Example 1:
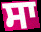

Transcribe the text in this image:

ਸਾ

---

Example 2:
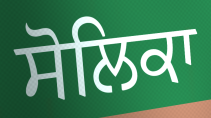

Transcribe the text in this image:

ਸੋਲਿਕਾ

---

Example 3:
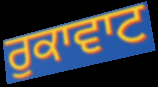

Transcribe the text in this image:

ਰੁਕਾਵਾਟ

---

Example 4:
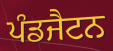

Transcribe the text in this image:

ਪੰਡਜੈਟਨ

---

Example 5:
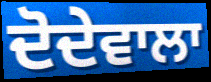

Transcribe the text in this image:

ਦੋਦੇਵਾਲਾ